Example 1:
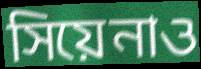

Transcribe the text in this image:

সিয়েনাও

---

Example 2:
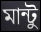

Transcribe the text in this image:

মান্টু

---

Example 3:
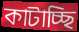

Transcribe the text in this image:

কাটাচ্ছি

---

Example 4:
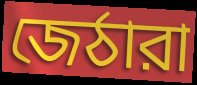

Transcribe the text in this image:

জেঠারা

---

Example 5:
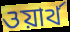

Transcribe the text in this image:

ওয়ার্থ